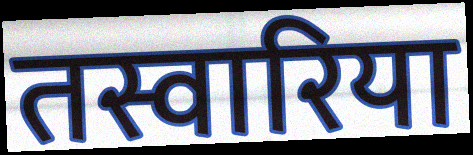
तस्वारिया